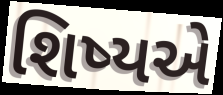
શિષ્યએ